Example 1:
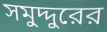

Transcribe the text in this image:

সমুদ্দুরের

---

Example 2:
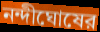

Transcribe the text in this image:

নন্দীঘোষের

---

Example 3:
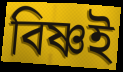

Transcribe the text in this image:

বিষ্ণই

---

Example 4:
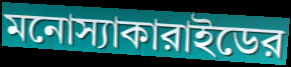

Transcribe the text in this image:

মনোস্যাকারাইডের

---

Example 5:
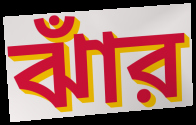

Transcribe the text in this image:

ঝাঁর